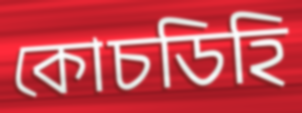
কোচডিহি